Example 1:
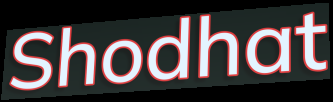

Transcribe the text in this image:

Shodhat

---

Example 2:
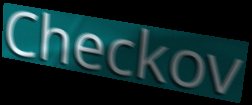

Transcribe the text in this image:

Checkov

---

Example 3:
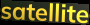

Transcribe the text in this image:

satellite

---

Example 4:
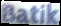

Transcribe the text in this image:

Batik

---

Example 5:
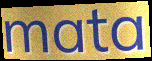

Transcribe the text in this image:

mata